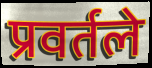
प्रवर्तले